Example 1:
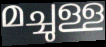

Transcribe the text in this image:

മച്ചുള്ള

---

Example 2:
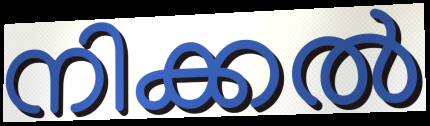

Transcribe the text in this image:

നിക്കൽ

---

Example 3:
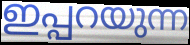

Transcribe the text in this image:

ഇപ്പറയുന്ന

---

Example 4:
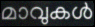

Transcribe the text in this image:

മാവുകൾ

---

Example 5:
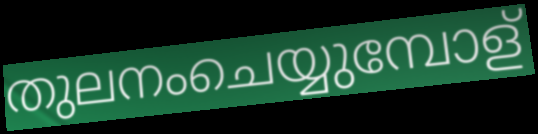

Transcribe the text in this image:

തുലനംചെയ്യുമ്പോള്